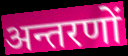
अन्तरणों